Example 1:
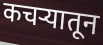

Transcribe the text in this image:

कचर्‍यातून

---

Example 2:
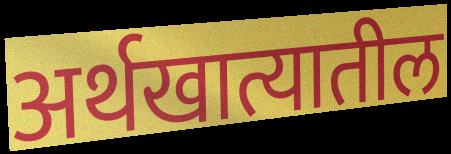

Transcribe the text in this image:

अर्थखात्यातील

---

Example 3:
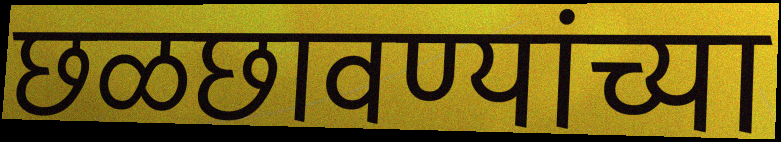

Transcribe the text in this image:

छळछावण्यांच्या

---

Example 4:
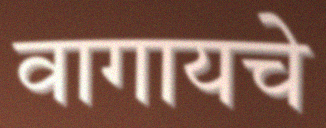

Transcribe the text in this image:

वागायचे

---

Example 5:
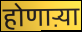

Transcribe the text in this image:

होणाऱ्‍या